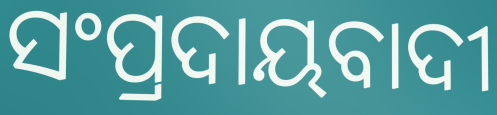
ସଂପ୍ରଦାୟବାଦୀ